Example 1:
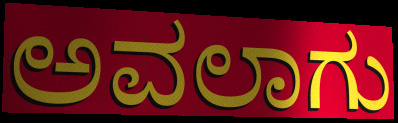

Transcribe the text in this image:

ಅವಲಾಗು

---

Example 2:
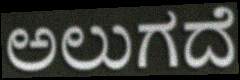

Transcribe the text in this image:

ಅಲುಗದೆ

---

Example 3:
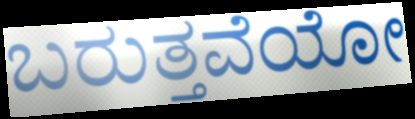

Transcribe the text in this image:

ಬರುತ್ತವೆಯೋ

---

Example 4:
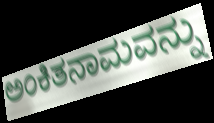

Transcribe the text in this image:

ಅಂಕಿತನಾಮವನ್ನು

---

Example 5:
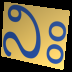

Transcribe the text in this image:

ನಿಃ